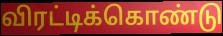
விரட்டிக்கொண்டு